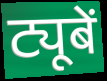
ट्यूबें